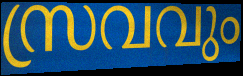
സ്രവവും